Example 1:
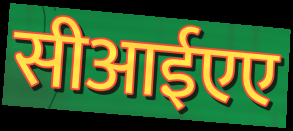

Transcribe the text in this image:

सीआईएए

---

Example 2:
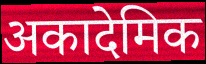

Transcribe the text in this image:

अकादेमिक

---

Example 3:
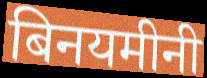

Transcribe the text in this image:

बिनयमीनी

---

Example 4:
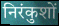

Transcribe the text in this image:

निरंकुशों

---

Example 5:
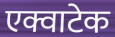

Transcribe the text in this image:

एक्वाटेक